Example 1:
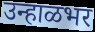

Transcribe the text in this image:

उन्हाळभर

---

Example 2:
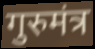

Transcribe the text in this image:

गुरुमंत्र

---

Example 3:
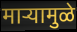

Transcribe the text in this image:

माऱ्यामुळे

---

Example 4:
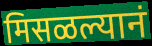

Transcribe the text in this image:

मिसळल्यानं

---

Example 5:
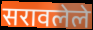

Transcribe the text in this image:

सरावलेले